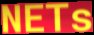
NETs